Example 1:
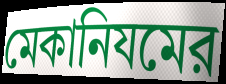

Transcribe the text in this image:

মেকানিযমের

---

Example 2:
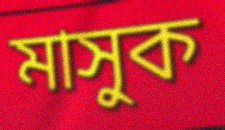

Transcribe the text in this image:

মাসুক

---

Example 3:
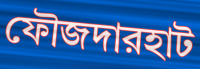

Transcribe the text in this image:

ফৌজদারহাট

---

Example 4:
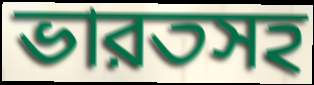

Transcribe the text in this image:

ভারতসহ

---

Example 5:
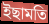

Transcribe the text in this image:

ইছামতি